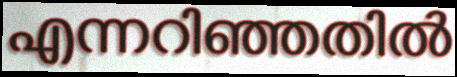
എന്നറിഞ്ഞതിൽ